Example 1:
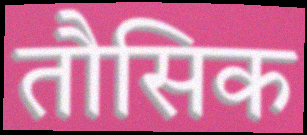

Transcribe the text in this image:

तौसिक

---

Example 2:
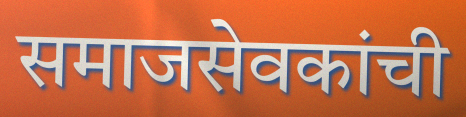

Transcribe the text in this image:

समाजसेवकांची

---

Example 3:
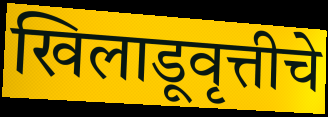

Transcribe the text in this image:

खिलाडूवृत्तीचे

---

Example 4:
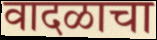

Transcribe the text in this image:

वादळाचा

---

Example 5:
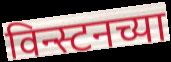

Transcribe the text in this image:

विन्स्टनच्या